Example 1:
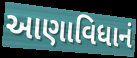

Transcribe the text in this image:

આણાવિધાનં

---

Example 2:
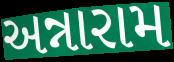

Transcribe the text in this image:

અન્નારામ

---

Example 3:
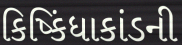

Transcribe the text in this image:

કિષ્કિંધાકાંડની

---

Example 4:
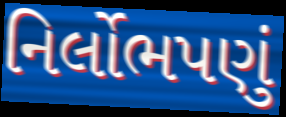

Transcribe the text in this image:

નિર્લોભપણું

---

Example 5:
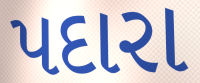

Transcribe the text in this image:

પદારા